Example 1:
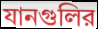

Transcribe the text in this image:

যানগুলির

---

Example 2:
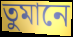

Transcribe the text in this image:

তুমানে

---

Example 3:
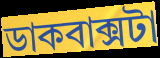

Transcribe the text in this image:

ডাকবাক্সটা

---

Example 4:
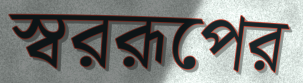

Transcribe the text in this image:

স্বররূপের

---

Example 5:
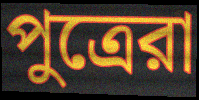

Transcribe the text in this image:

পুত্রেরা